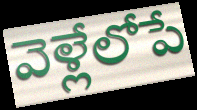
వెళ్లేలోపే